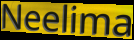
Neelima